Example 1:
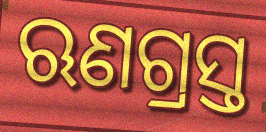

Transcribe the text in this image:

ଋଣଗ୍ରସ୍ତ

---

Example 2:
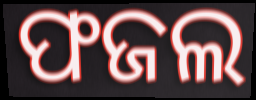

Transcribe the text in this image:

ଫଜଲ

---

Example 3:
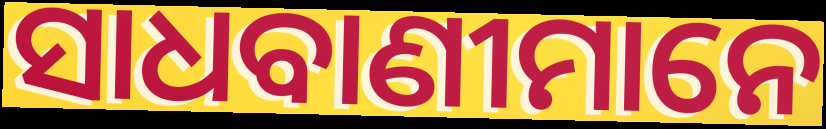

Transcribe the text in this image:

ସାଧବାଣୀମାନେ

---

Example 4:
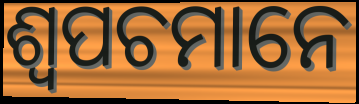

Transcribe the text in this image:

ଶ୍ୱପଚମାନେ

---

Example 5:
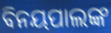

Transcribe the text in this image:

ବିନୟପାଲଙ୍କ